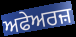
ਅਫੇਅਰਜ਼